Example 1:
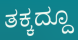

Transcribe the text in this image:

ತಕ್ಕದ್ದೂ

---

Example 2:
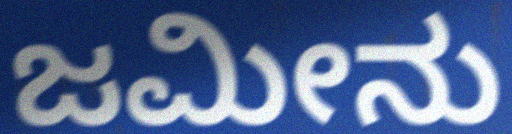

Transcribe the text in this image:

ಜಮೀನು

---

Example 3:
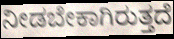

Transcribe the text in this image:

ನೀಡಬೇಕಾಗಿರುತ್ತದೆ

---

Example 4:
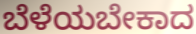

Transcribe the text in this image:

ಬೆಳೆಯಬೇಕಾದ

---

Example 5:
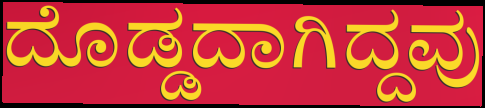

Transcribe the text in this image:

ದೊಡ್ಡದಾಗಿದ್ದವು